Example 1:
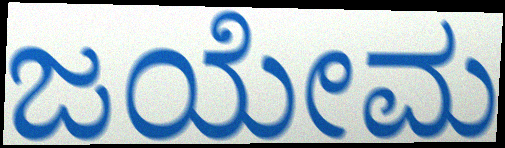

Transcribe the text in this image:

ಜಯೇಮ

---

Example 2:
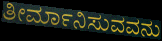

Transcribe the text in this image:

ತೀರ್ಮಾನಿಸುವವನು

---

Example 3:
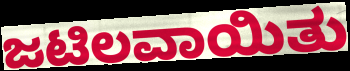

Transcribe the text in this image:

ಜಟಿಲವಾಯಿತು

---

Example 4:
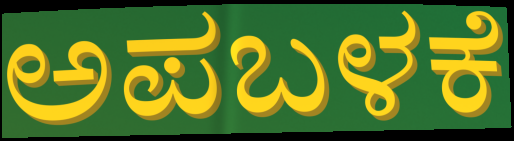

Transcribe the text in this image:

ಅಪಬಳಕೆ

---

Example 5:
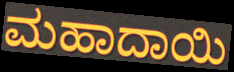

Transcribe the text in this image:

ಮಹಾದಾಯಿ